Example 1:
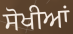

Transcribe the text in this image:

ਸੋਖੀਆਂ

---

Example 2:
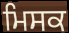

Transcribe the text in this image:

ਮਿਸਕ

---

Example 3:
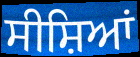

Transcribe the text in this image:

ਸੀਸ਼ਿਆਂ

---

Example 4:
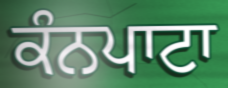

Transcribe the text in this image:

ਕੰਨਪਾਟਾ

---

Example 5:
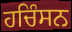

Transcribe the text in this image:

ਹਚਿੰਸਨ